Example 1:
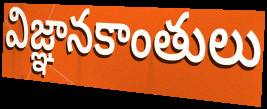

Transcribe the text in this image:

విజ్ఞానకాంతులు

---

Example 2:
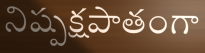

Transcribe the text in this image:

నిష్పక్షపాతంగా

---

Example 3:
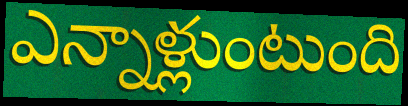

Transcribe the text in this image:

ఎన్నాళ్లుంటుంది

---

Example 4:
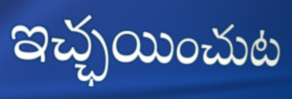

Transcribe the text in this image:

ఇచ్ఛయించుట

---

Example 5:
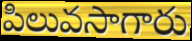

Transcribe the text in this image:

పిలువసాగారు